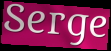
Serge